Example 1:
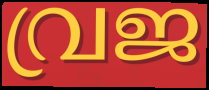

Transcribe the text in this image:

വ്രജ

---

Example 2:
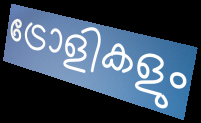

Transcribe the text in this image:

ട്രോളികളും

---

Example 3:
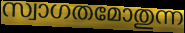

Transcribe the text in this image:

സ്വാഗതമോതുന്ന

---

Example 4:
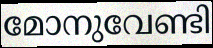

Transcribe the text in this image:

മോനുവേണ്ടി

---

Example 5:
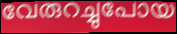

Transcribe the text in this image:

വേരുറച്ചുപോയ